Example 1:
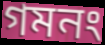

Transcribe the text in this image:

গমনং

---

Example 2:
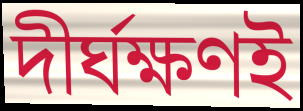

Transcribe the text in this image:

দীর্ঘক্ষণই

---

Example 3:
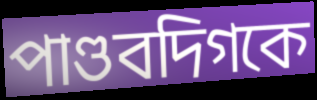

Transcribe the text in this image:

পাণ্ডবদিগকে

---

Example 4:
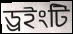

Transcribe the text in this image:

ড্রইংটি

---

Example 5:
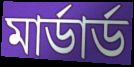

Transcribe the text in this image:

মার্ডার্ড